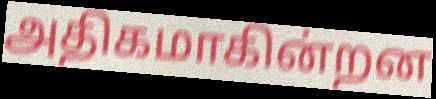
அதிகமாகின்றன